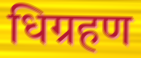
धिग्रहण